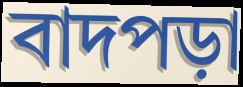
বাদপড়া